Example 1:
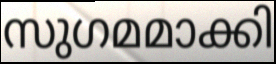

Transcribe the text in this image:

സുഗമമാക്കി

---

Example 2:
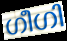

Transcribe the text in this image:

ഗീഗി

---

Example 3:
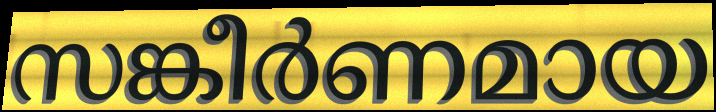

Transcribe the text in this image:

സങ്കീർണമായ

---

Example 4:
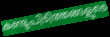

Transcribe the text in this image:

കണ്ടുപിടിത്തങ്ങളുടെ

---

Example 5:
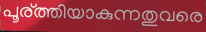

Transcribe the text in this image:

പൂര്ത്തിയാകുന്നതുവരെ